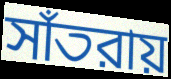
সাঁতরায়